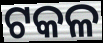
ଟକଳ